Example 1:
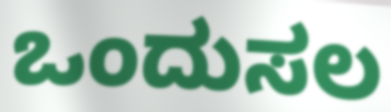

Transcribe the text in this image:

ಒಂದುಸಲ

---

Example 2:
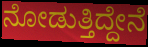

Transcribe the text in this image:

ನೋಡುತ್ತಿದ್ದೇನೆ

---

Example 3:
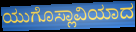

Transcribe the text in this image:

ಯುಗೊಸ್ಲಾವಿಯಾದ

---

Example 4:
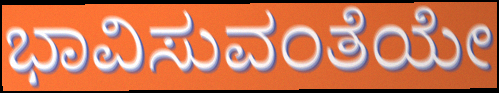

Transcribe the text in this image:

ಭಾವಿಸುವಂತೆಯೇ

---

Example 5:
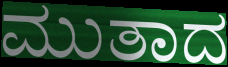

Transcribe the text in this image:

ಮುತಾದ